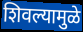
शिवल्यामुळे